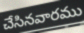
చేసినవారము